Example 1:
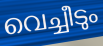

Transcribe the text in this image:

വെച്ചീടും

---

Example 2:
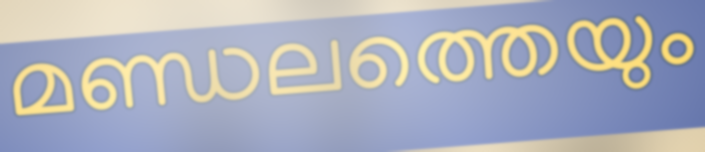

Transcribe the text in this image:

മണ്ഡലത്തെയും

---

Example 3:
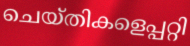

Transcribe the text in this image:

ചെയ്തികളെപ്പറ്റി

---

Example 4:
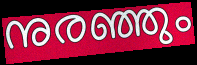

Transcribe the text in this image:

നുരഞ്ഞും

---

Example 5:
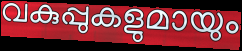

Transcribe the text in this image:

വകുപ്പുകളുമായും